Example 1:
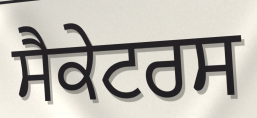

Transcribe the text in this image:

ਸੈਕੇਟਰਸ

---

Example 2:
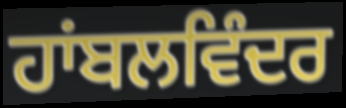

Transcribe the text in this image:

ਹਾਂਬਲਵਿੰਦਰ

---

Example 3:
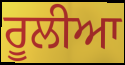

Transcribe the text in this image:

ਰੂਲੀਆ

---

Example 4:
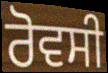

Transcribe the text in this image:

ਰੋਵਸੀ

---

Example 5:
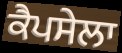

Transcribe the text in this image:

ਕੈਪਸੇਲਾ